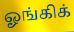
ஓங்கிக்